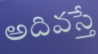
అదివస్తే